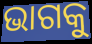
ଭାଗକୁ